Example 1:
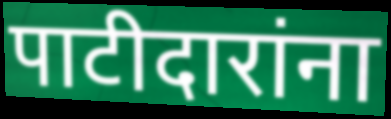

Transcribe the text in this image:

पाटीदारांना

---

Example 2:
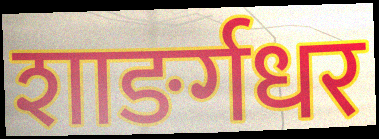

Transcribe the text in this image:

शाङर्गधर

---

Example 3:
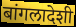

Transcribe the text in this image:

बांगलादेशी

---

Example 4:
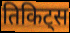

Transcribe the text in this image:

तिकिट्स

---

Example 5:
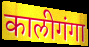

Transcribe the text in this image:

कालीगंगा